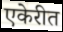
एकेरीत